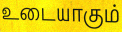
உடையாகும்